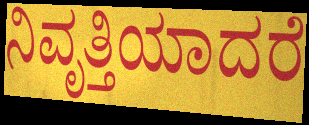
ನಿವೃತ್ತಿಯಾದರೆ